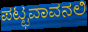
ಪಟ್ಟವಾವನಲಿ